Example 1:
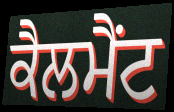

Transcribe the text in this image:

ਕੈਲਮੈਂਟ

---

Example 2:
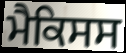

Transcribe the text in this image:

ਮੈਕਿਸਸ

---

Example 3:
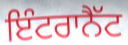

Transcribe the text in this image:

ਇੰਟਰਾਨੈੱਟ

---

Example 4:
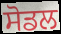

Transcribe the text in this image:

ਸੋਡਲ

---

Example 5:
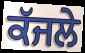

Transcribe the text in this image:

ਕੱਜਲੇ